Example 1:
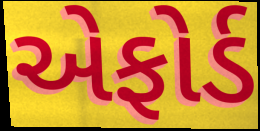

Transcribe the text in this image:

એફોર્ડ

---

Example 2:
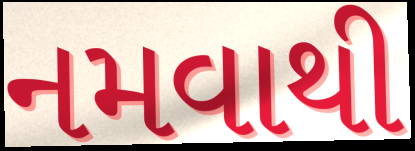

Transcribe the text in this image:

નમવાથી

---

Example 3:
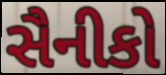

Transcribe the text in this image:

સૈનીકો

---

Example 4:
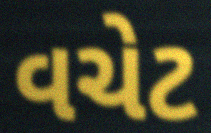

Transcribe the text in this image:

વચેટ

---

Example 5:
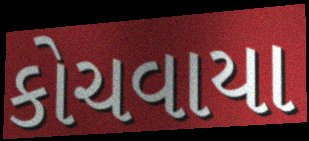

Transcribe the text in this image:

કોચવાયા